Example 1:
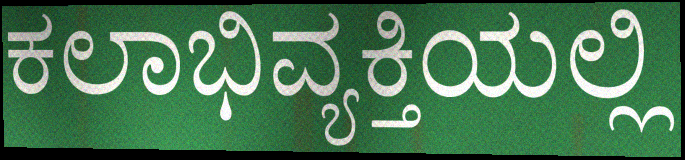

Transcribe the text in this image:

ಕಲಾಭಿವ್ಯಕ್ತಿಯಲ್ಲಿ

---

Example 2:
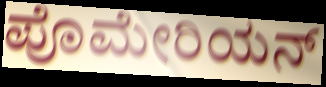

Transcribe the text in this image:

ಪೊಮೇರಿಯನ್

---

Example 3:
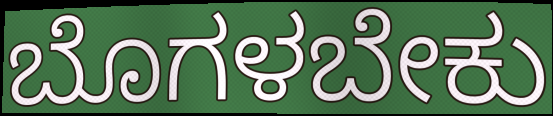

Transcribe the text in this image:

ಬೊಗಳಬೇಕು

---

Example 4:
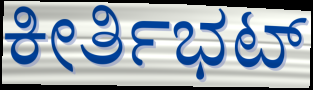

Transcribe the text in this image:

ಕೀರ್ತಿಭಟ್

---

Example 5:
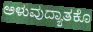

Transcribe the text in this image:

ಅಳುವುದ್ಯಾತಕೊ